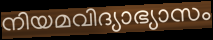
നിയമവിദ്യാഭ്യാസം